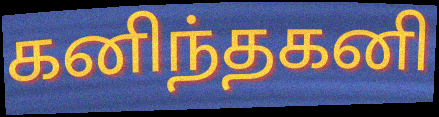
கனிந்தகனி